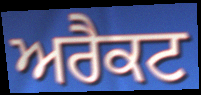
ਅਰੈਕਟ